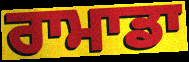
ਰਾਮਾਡਾ